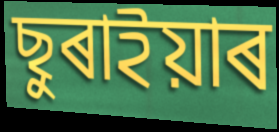
ছুৰাইয়াৰ